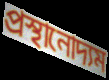
প্রস্থানোদ্যম